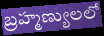
బ్రహ్మణ్యులలో